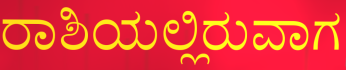
ರಾಶಿಯಲ್ಲಿರುವಾಗ